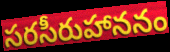
సరసీరుహాననం